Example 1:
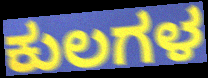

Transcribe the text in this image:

ಕುಲಗಳ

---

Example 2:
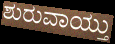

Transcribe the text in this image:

ಶುರುವಾಯ್ತು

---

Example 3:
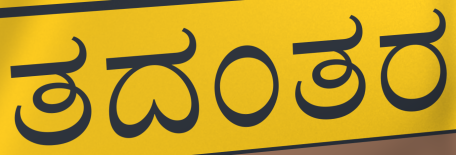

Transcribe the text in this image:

ತದಂತರ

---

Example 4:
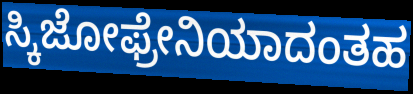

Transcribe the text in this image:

ಸ್ಕಿಜೋಫ್ರೇನಿಯಾದಂತಹ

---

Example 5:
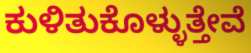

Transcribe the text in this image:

ಕುಳಿತುಕೊಳ್ಳುತ್ತೇವೆ